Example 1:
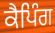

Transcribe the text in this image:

ਕੈਪਿੰਗ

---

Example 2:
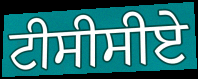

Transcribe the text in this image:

ਟੀਸੀਸੀਏ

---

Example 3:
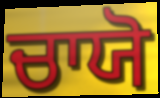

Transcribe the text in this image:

ਚਾਯੋ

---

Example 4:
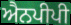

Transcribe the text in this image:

ਐਨਪੀਪੀ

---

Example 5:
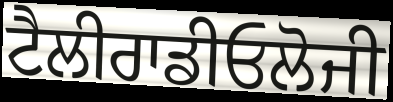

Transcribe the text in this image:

ਟੈਲੀਰਾਡੀਓਲੋਜੀ